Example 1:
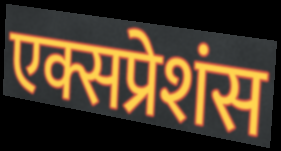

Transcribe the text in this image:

एक्सप्रेशंस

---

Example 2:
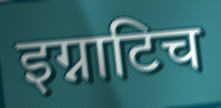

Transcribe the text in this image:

इग्नाटिच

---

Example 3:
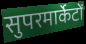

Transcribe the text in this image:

सुपरमार्केटों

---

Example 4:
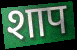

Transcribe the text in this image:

शाप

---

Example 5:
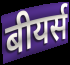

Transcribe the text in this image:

बीयर्स